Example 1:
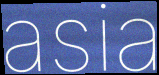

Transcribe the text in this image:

asia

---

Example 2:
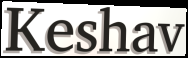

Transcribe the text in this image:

Keshav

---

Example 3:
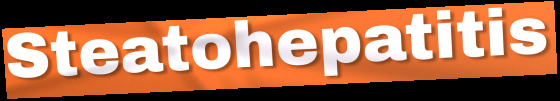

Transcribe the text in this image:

Steatohepatitis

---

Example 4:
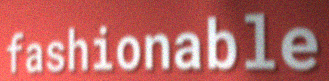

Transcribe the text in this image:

fashionable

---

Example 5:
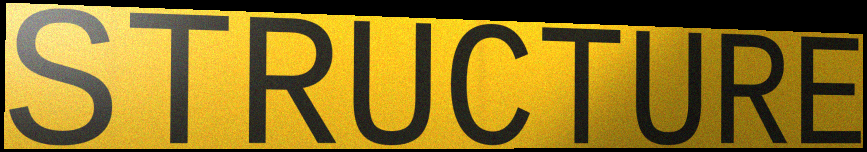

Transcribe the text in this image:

STRUCTURE